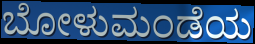
ಬೋಳುಮಂಡೆಯ